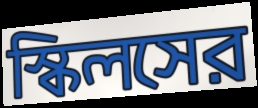
স্কিলসের